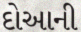
દોઆની